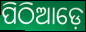
ପିଠିଆଡ଼େ